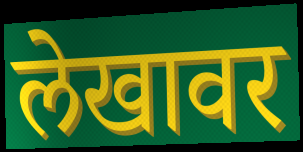
लेखावर